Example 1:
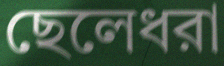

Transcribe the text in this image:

ছেলেধরা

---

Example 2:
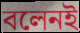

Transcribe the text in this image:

বলেনই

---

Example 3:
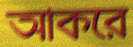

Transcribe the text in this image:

আকরে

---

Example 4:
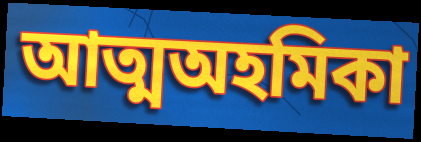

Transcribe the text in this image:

আত্মঅহমিকা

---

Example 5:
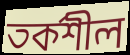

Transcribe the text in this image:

তর্কশীল